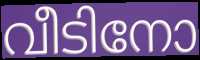
വീടിനോ